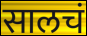
सालचं